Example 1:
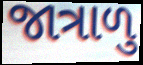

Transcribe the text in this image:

જાત્રાળુ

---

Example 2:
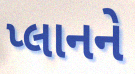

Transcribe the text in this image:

પ્લાનને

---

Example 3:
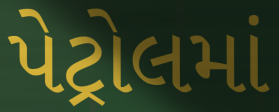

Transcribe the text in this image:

પેટ્રોલમાં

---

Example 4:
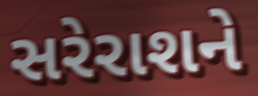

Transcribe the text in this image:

સરેરાશને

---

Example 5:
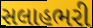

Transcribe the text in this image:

સલાહભરી